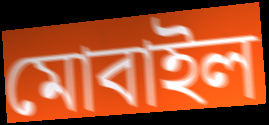
মোবাইল